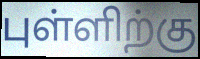
புள்ளிற்கு